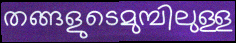
തങ്ങളുടെമുമ്പിലുള്ള